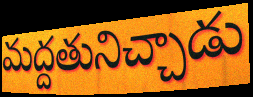
మద్దతునిచ్చాడు